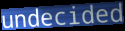
undecided